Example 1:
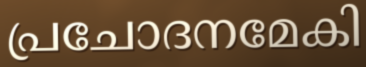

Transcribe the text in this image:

പ്രചോദനമേകി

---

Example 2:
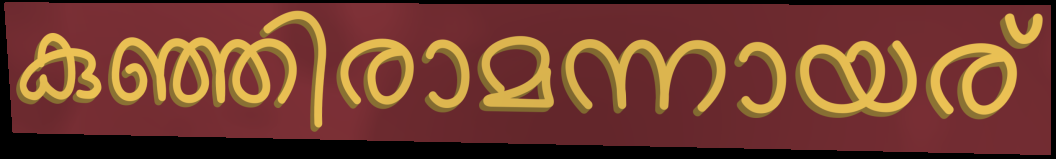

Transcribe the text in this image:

കുഞ്ഞിരാമന്നായര്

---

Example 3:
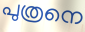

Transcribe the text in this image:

പുത്രനെ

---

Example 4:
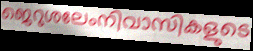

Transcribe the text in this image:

ജെറുശലേംനിവാസികളുടെ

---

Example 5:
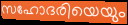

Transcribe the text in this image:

സഹോദരിയെയും